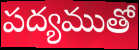
పద్యముతో